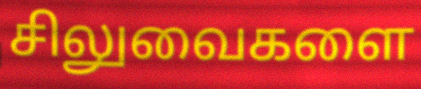
சிலுவைகளை